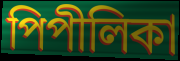
পিপীলিকা